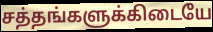
சத்தங்களுக்கிடையே